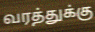
வரத்துக்கு